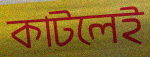
কাটলেই